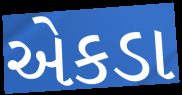
એકડા